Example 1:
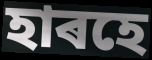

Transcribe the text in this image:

হাৰহে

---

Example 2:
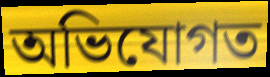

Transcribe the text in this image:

অভিযোগত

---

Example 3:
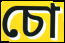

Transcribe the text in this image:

চো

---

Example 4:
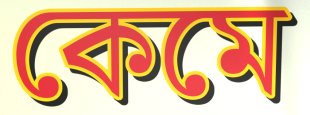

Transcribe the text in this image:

কেমে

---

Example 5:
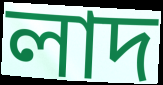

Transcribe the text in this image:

লাদ